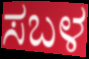
ಸಬಳ